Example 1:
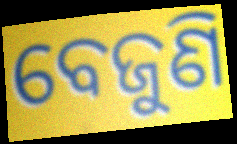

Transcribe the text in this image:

ବେଜୁଣି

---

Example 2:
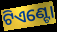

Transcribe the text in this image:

ଟିଏଣ୍ଟୋ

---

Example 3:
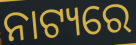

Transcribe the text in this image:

ନାଟ୍ୟରେ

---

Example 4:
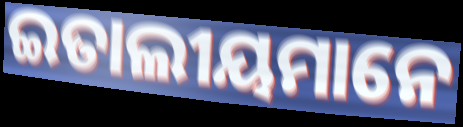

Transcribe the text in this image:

ଇତାଲୀୟମାନେ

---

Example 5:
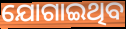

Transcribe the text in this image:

ଯୋଗାଇଥିବ